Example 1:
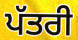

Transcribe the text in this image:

ਪੱਤਰੀ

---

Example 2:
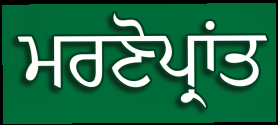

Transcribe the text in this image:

ਮਰਣੋਪ੍ਰਾਂਤ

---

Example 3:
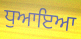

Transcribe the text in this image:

ਧੁਆਇਆ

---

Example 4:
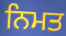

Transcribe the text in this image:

ਨਿਮਤ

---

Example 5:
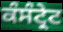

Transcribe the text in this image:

ਕੰਸੰਟ੍ਰੇਟ